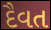
દૈવત